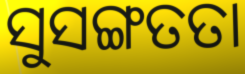
ସୁସଙ୍ଗତତା